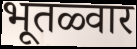
भूतळ्वार